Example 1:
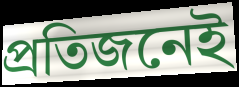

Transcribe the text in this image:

প্ৰতিজনেই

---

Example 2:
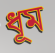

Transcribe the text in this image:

ধূম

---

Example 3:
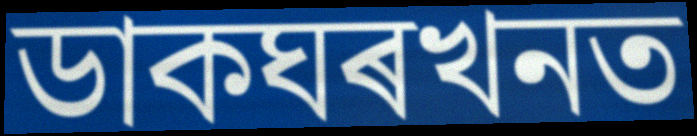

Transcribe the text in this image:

ডাকঘৰখনত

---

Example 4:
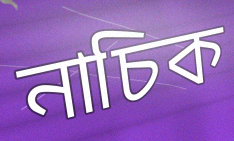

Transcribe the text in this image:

নাচিক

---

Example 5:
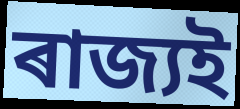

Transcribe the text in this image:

ৰাজ্যই